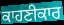
ਕਾਹਣੀਕਾਰ